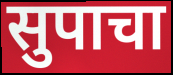
सुपाचा